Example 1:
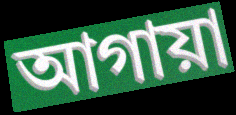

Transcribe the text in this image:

আগায়া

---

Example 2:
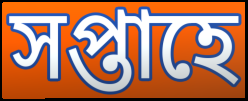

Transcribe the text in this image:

সপ্তাহে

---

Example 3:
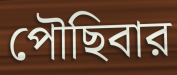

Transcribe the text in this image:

পৌছিবার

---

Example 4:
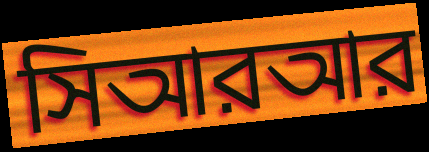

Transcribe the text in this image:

সিআরআর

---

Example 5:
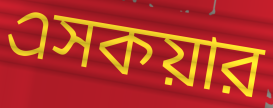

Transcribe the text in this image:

এসকয়ার